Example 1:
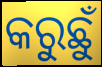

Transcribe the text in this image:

କରୁଛୁଁ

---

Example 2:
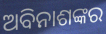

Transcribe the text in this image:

ଅବିନାଶଙ୍କର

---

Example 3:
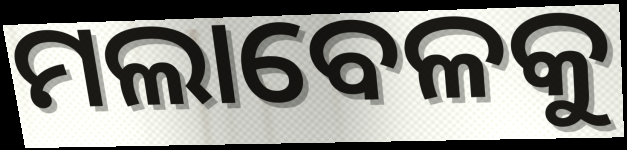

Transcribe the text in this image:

ମଲାବେଳକୁ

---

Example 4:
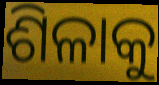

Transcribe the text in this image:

ଶିଳାକୁ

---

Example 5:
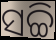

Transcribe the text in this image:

ସଚ୍ଚି